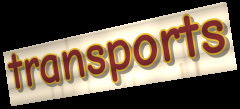
transports